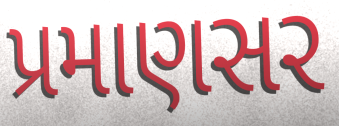
પ્રમાણસર